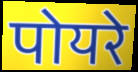
पोयरे